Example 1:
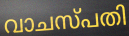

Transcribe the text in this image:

വാചസ്പതി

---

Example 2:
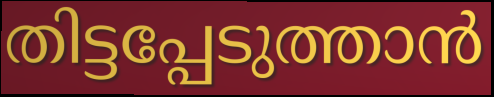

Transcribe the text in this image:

തിട്ടപ്പേടുത്താൻ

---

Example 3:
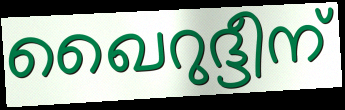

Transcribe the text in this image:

ഖൈറുദ്ദീന്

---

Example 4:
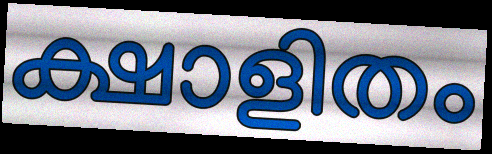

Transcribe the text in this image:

ക്ഷാളിതം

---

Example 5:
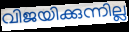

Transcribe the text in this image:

വിജയിക്കുന്നില്ല